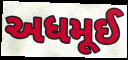
અધમૂઈ